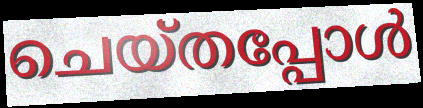
ചെയ്തപ്പോൾ